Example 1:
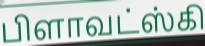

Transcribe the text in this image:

பிளாவட்ஸ்கி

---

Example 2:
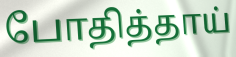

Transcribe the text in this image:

போதித்தாய்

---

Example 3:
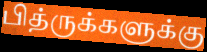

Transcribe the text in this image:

பித்ருக்களுக்கு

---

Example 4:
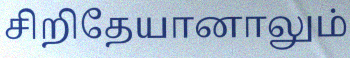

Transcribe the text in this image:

சிறிதேயானாலும்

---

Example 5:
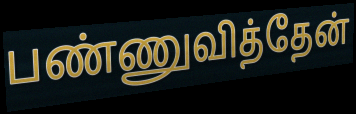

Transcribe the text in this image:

பண்ணுவித்தேன்